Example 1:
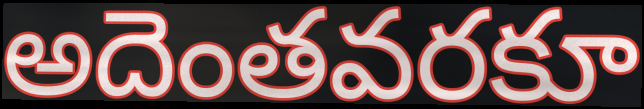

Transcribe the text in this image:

అదెంతవరకూ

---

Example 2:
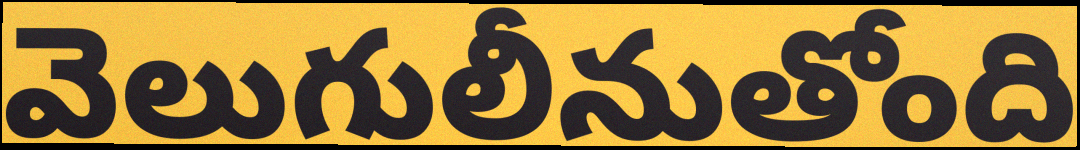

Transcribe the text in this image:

వెలుగులీనుతోంది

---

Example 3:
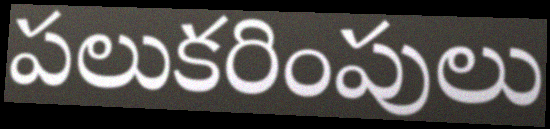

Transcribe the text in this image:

పలుకరింపులు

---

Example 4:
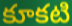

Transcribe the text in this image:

కూకటి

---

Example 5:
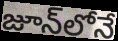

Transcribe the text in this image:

జూన్‌లోనే